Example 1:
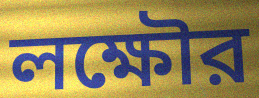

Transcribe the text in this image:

লক্ষৌর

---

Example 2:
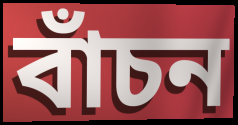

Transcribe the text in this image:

বাঁচন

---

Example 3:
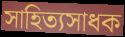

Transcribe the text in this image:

সাহিত্যসাধক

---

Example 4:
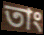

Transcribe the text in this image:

তাং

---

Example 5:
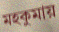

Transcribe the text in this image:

মহকুমায়